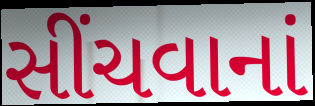
સીંચવાનાં